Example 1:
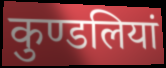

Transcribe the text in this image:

कुण्डलियां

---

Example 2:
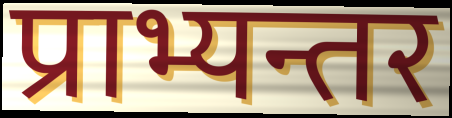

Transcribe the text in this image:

प्राभ्यन्तर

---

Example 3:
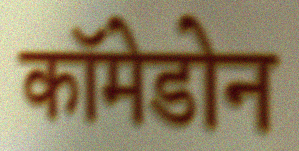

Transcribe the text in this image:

कॉमेडोन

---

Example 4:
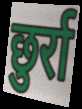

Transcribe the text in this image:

छुर्रा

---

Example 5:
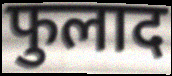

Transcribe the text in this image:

फुलाद